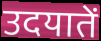
उदयातें